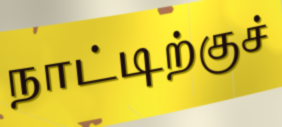
நாட்டிற்குச்